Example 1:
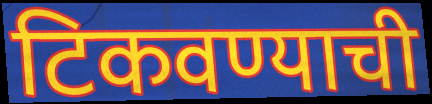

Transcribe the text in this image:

टिकवण्याची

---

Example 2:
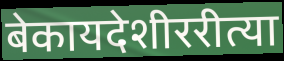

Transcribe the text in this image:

बेकायदेशीररीत्या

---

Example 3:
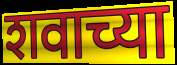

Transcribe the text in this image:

शवाच्या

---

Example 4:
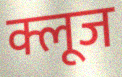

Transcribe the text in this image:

क्लूज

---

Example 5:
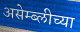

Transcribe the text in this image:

असेम्ब्लीच्या